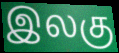
இலகு